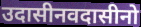
उदासीनवदासीनो